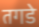
तगडे